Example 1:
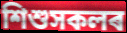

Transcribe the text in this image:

শিশুসকলৰ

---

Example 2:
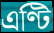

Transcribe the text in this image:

এণ্টি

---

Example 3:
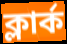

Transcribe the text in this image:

ক্লাৰ্ক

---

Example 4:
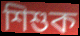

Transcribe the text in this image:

শিশুক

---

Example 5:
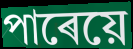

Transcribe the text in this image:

পাৰেয়ে